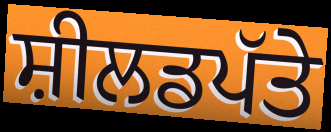
ਸ਼ੀਲਡਪੱਤੇ